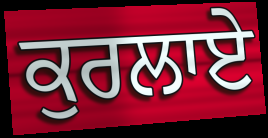
ਕੁਰਲਾਏ